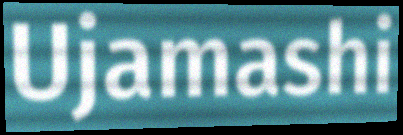
Ujamashi